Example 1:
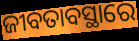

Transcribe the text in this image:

ଜୀବତାବସ୍ଥାରେ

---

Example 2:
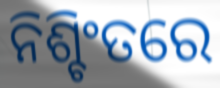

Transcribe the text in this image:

ନିଶ୍ଚିଂତରେ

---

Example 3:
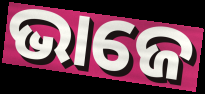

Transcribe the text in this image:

ଭାଜେ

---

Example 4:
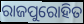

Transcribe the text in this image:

ରାଜପୁରୋହିତ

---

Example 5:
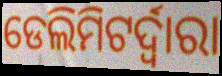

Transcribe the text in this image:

ଡେଲିମିଟର୍ଦ୍ୱାରା